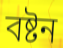
বষ্টন